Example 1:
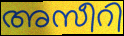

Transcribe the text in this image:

അസീറി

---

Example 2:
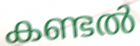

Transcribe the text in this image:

കണ്ടൽ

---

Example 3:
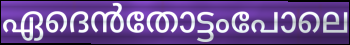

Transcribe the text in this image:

ഏദെൻതോട്ടംപോലെ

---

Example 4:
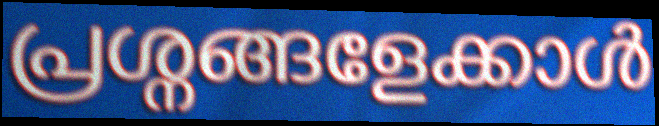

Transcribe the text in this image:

പ്രശ്നങ്ങളേക്കാൾ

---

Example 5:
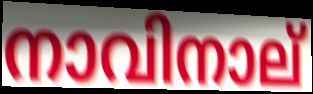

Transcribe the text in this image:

നാവിനാല്